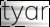
tyar